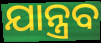
ଯାନ୍ତ୍ରବ